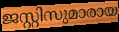
ജസ്റ്റിസുമാരായ